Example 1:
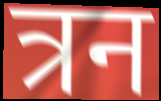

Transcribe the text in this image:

त्रन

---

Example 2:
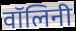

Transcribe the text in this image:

वॉलिनी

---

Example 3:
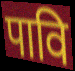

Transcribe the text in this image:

पावि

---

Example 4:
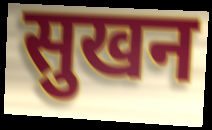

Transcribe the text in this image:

सुखन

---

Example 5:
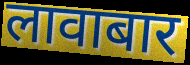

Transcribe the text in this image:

लावाबार